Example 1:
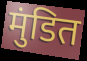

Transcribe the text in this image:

मुंडित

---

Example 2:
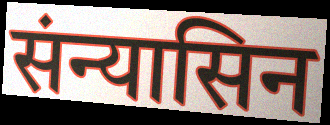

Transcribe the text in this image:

संन्यासिन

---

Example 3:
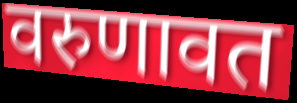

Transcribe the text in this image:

वरुणावत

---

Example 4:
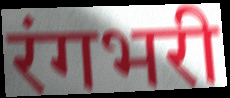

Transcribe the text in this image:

रंगभरी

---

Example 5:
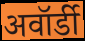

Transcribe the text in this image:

अवॉर्डी